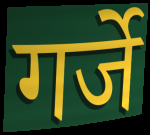
गर्जे